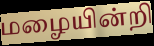
மழையின்றி